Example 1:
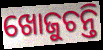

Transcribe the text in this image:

ଖୋଜୁଚନ୍ତି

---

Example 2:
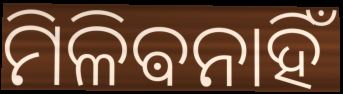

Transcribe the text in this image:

ମିଳିଵନାହିଁ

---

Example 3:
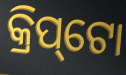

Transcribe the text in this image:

କ୍ରିପ୍‌ଟୋ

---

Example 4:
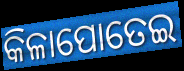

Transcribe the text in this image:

କିଳାପୋତେଇ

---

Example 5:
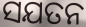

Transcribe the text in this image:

ସଯତନ